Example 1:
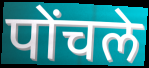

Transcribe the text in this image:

पोंचले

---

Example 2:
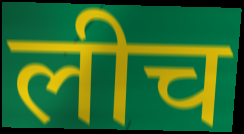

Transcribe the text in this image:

लीच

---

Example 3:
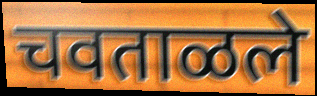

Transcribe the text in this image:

चवताळले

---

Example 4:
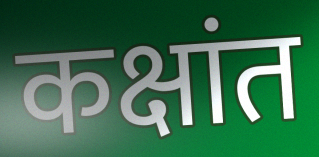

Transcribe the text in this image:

कक्षांत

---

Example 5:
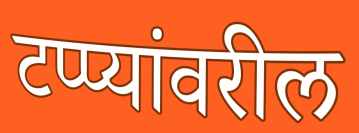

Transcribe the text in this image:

टप्प्यांवरील